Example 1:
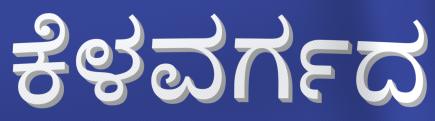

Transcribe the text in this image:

ಕೆಳವರ್ಗದ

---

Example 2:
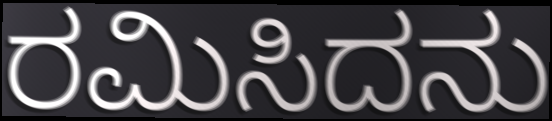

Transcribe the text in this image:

ರಮಿಸಿದನು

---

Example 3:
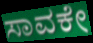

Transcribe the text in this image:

ಸಾವಕೇ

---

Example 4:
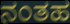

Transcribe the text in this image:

ನಂತಹ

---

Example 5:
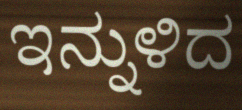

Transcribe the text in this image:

ಇನ್ನುಳಿದ